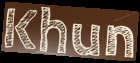
Khun